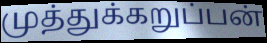
முத்துக்கறுப்பன்